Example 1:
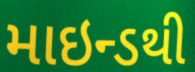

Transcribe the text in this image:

માઇન્ડથી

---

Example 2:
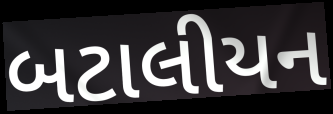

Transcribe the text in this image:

બટાલીયન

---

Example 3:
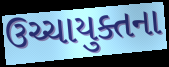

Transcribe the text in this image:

ઉચ્ચાયુક્તના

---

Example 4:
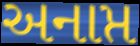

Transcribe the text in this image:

અનાપ્ત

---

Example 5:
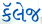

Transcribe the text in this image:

કૅલેજ